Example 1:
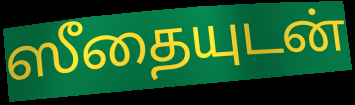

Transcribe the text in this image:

ஸீதையுடன்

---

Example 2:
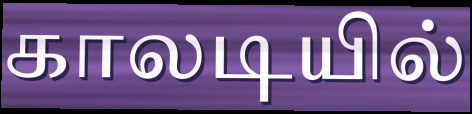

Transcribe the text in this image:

காலடியில்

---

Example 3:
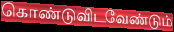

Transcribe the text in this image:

கொண்டுவிடவேண்டும்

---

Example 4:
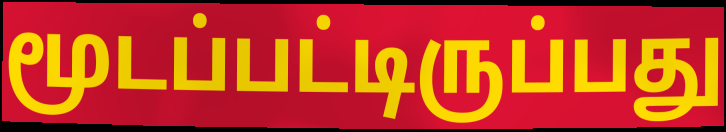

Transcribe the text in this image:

மூடப்பட்டிருப்பது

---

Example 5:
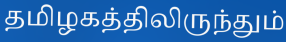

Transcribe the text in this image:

தமிழகத்திலிருந்தும்